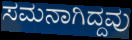
ಸಮನಾಗಿದ್ದವು